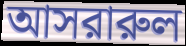
আসরারুল